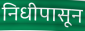
निधीपासून